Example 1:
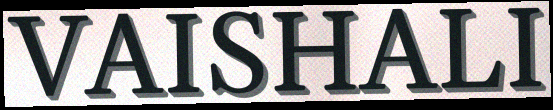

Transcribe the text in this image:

VAISHALI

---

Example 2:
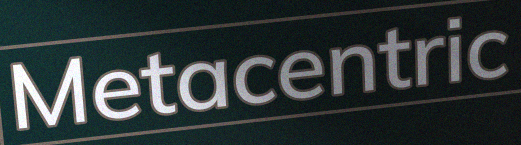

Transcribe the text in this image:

Metacentric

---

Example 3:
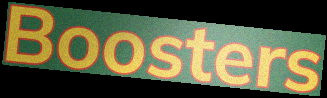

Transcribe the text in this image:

Boosters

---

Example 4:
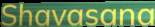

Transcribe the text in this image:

Shavasana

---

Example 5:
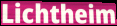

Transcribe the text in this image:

Lichtheim